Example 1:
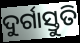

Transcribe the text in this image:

ଦୁର୍ଗାସ୍ତୁତି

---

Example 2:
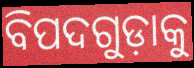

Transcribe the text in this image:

ବିପଦଗୁଡ଼ାକୁ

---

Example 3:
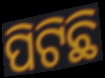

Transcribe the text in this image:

ପିଟିଛି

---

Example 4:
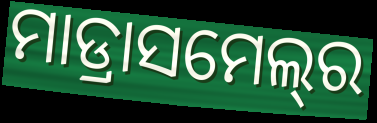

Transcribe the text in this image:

ମାଡ୍ରାସମେଲ୍‍ର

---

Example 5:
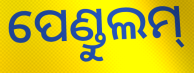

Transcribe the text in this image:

ପେଣ୍ଡୁଲମ୍